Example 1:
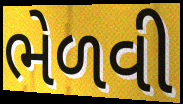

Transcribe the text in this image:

ભેળવી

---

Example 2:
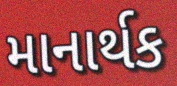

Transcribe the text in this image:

માનાર્થક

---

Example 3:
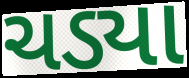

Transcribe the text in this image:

ચડ્યા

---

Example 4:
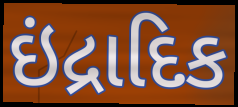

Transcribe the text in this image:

ઇંદ્રાદિક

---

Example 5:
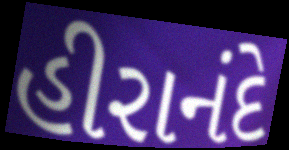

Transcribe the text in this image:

હીરાનંદે